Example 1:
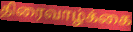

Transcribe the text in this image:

திரைவாழ்க்கை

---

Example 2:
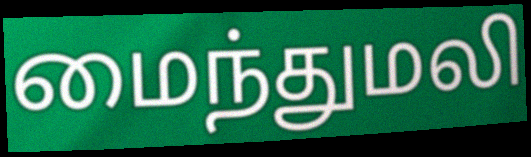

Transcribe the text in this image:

மைந்துமலி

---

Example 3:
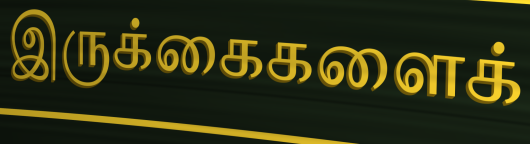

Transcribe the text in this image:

இருக்கைகளைக்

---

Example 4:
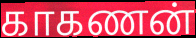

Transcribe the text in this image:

காகணன்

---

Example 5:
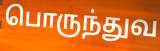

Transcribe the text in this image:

பொருந்துவ